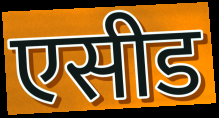
एसीड